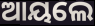
ଆୟଲେ